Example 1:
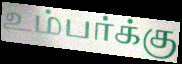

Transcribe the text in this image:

உம்பர்க்கு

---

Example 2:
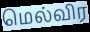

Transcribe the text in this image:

மெல்விர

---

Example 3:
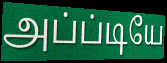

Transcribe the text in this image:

அப்ப்டியே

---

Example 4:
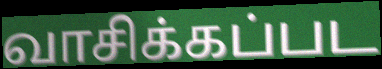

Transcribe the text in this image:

வாசிக்கப்பட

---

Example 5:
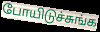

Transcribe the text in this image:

போயிடுச்சுங்க